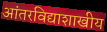
आंतरविद्याशाखीय